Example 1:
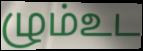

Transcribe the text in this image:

ழும்உட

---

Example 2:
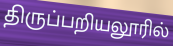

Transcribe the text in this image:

திருப்பறியலூரில்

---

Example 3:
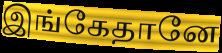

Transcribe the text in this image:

இங்கேதானே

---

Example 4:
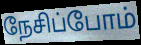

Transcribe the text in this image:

நேசிப்போம்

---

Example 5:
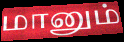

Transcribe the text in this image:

மானும்